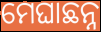
ମେଘାଛନ୍ନ